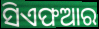
ସିଏଫଆର